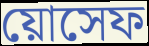
য়োসেফ